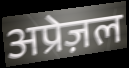
अप्रेज़ल